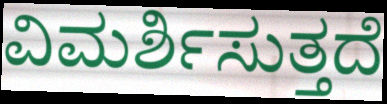
ವಿಮರ್ಶಿಸುತ್ತದೆ